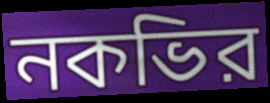
নকভির